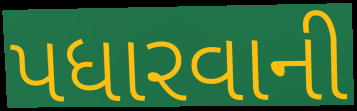
પધારવાની